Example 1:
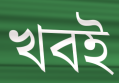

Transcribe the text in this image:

খবই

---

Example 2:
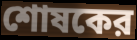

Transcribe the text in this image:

শোষকের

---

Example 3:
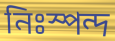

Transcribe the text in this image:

নিঃস্পন্দ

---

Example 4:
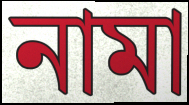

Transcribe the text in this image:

নামা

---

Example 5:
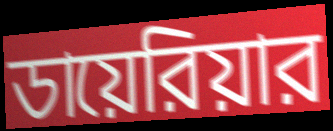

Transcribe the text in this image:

ডায়েরিয়ার